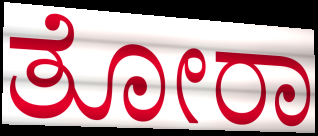
ತೋರಾ